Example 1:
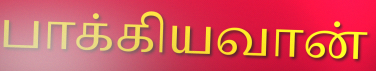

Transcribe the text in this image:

பாக்கியவான்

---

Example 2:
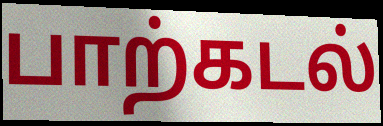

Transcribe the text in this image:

பாற்கடல்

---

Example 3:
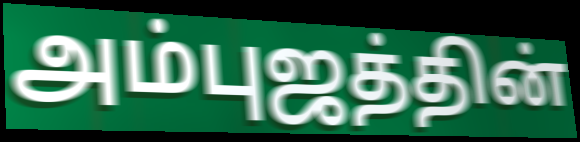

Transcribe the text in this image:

அம்புஜத்தின்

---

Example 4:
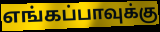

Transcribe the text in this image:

எங்கப்பாவுக்கு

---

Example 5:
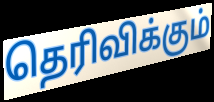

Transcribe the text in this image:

தெரிவிக்கும்